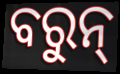
ବରୁନ୍